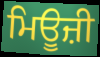
ਮਿਊਜ਼ੀ